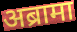
अब्रामा